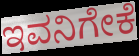
ಇವನಿಗೇಕೆ